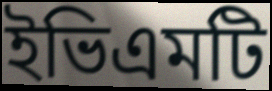
ইভিএমটি